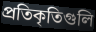
প্রতিকৃতিগুলি